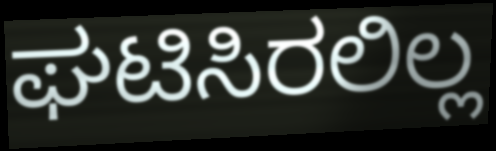
ಘಟಿಸಿರಲಿಲ್ಲ